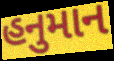
હનુમાન